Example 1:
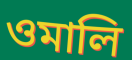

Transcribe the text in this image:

ওমালি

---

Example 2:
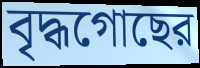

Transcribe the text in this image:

বৃদ্ধগোছের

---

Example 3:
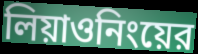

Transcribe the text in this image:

লিয়াওনিংয়ের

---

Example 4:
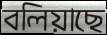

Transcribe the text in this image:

বলিয়াছে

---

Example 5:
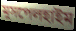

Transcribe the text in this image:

মুসপেলহাইম